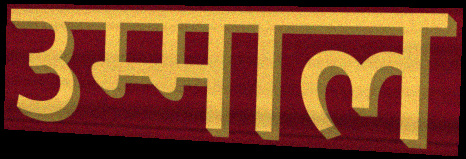
उम्माल